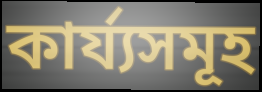
কাৰ্য্যসমূহ